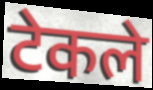
टेकले